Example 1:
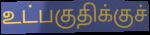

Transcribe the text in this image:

உட்பகுதிக்குச்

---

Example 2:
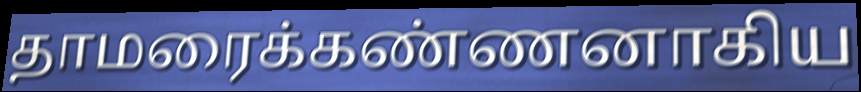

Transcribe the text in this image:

தாமரைக்கண்ணனாகிய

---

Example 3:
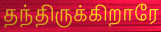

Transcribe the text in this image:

தந்திருக்கிறாரே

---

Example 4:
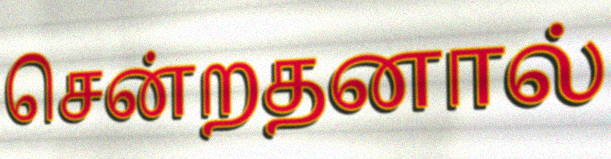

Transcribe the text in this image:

சென்றதனால்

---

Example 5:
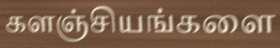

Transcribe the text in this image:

களஞ்சியங்களை